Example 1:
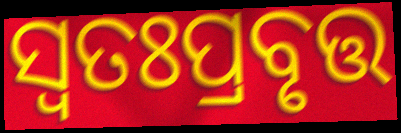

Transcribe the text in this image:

ସ୍ୱତଃପ୍ରବୃତ୍ତ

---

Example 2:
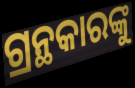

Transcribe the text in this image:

ଗ୍ରନ୍ଥକାରଙ୍କୁ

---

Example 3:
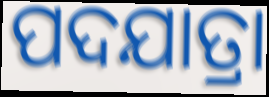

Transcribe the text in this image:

ପଦଯାତ୍ରା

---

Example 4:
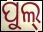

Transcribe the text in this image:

ପୁଲ୍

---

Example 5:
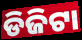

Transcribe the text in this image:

ଡିଜିଟା